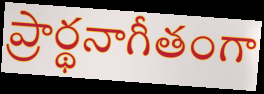
ప్రార్థనాగీతంగా